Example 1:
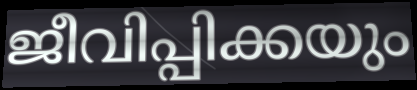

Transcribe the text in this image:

ജീവിപ്പിക്കയും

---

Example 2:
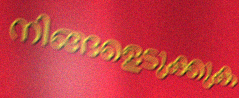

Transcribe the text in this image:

നിങ്ങളെടുക്കുക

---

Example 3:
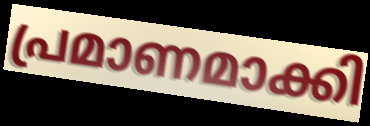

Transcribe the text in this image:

പ്രമാണമാക്കി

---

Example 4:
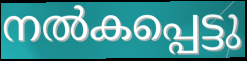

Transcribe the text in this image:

നൽകപ്പെട്ടു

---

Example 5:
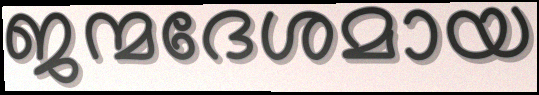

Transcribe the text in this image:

ജന്മദേശമായ